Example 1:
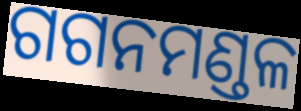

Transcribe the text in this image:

ଗଗନମଣ୍ଡଳ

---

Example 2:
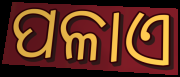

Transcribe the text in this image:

ପଳାଏ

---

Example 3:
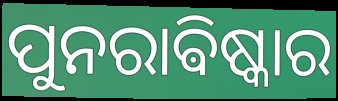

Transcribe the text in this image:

ପୁନରାଵିଷ୍କାର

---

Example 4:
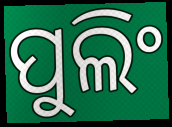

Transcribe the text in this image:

ପୁଲିଂ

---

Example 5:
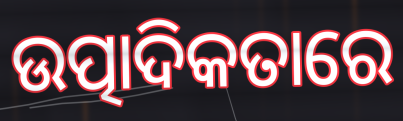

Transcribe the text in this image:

ଉତ୍ପାଦିକତାରେ